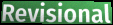
Revisional